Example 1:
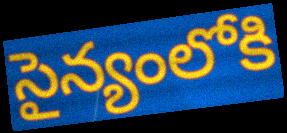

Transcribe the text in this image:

సైన్యంలోకి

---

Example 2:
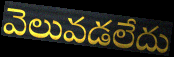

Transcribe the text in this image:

వెలువడలేదు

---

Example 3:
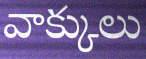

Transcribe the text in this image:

వాక్కులు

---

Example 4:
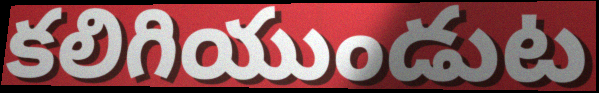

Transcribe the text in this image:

కలిగియుండుట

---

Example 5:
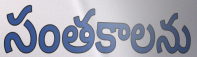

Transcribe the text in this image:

సంతకాలను